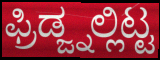
ಫ್ರಿಡ್ಜ್ನಲ್ಲಿಟ್ಟ